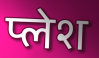
प्लेश